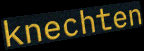
knechten